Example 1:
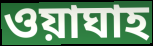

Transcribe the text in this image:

ওয়াঘাহ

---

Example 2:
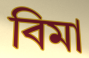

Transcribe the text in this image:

বিমা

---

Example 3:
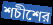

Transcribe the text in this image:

শচীশের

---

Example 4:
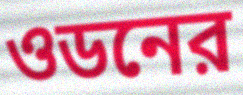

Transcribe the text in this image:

ওডনের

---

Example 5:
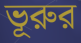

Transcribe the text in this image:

ভূরুর